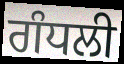
ਗੰਧਲੀ